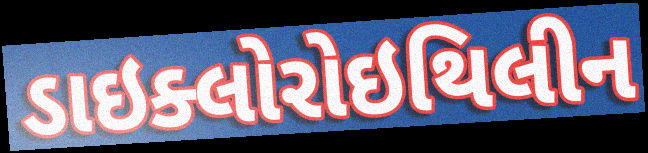
ડાઇક્લોરોઇથિલીન